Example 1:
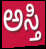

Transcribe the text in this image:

ಅಸ್ತಿ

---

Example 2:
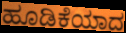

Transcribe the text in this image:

ಹೂಡಿಕೆಯಾದ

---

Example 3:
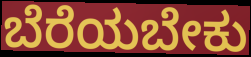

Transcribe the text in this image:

ಬೆರೆಯಬೇಕು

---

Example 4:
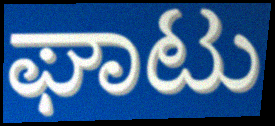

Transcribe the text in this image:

ಘಾಟು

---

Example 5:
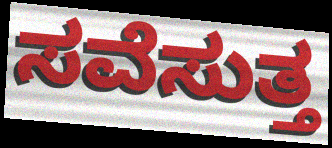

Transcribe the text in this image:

ಸವೆಸುತ್ತ